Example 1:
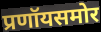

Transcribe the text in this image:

प्रणॉयसमोर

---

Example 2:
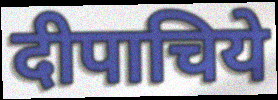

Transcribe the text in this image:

दीपाचिये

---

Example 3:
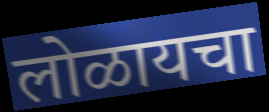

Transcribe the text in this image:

लोळायचा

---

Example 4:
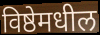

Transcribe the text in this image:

विष्ठेमधील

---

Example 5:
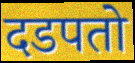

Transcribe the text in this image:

दडपतो